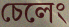
চেলেং